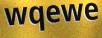
wqewe